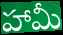
హామీ